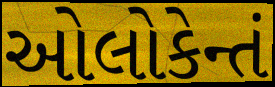
ઓલોકેન્તં